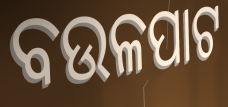
ବଉଳପାଟ